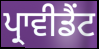
ਪ੍ਰਾਵੀਡੈਂਟ